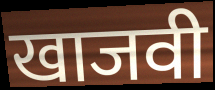
खाजवी